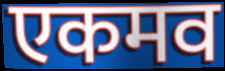
एकमव